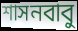
শাসনবাবু